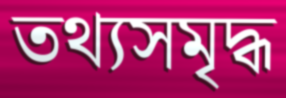
তথ্যসমৃদ্ধ